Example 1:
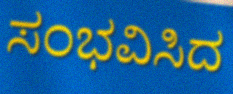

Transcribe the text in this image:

ಸಂಭವಿಸಿದ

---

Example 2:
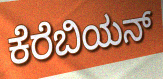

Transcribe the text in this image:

ಕೆರೆಬಿಯನ್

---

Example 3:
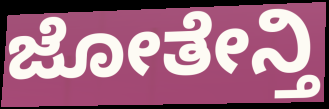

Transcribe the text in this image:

ಜೋತೇನ್ತಿ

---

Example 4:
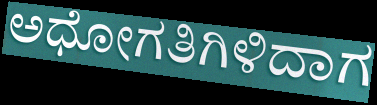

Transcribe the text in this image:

ಅಧೋಗತಿಗಿಳಿದಾಗ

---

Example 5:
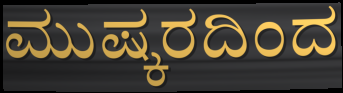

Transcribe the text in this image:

ಮುಷ್ಕರದಿಂದ